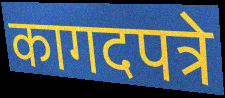
कागदपत्रे